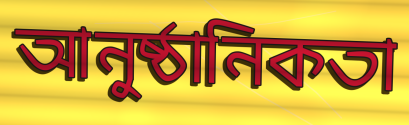
আনুষ্ঠানিকতা